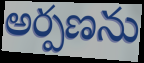
అర్పణను